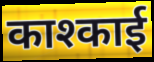
काश्काई